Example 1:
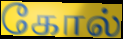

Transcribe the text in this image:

கோல்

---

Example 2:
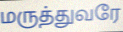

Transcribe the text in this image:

மருத்துவரே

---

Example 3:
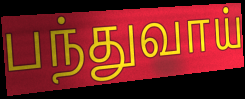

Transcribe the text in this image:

பந்துவாய்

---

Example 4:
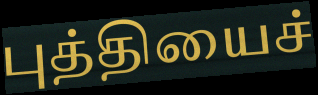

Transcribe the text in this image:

புத்தியைச்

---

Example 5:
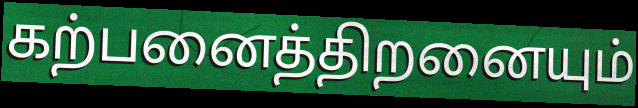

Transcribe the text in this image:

கற்பனைத்திறனையும்